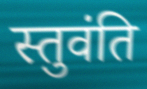
स्तुवंति